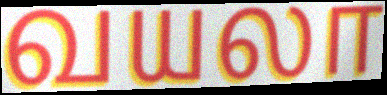
வயலா